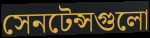
সেনটেন্সগুলো